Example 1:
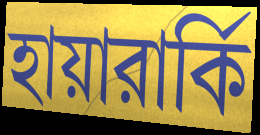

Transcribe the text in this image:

হায়ারার্কি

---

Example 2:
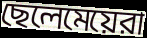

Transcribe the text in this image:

ছেলেমেয়েরা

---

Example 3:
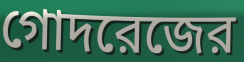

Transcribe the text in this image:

গোদরেজের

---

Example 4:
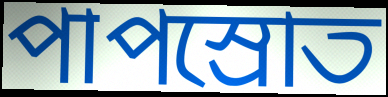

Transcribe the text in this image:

পাপস্রোত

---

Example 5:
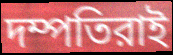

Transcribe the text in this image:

দম্পতিরাই